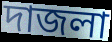
দাজলা